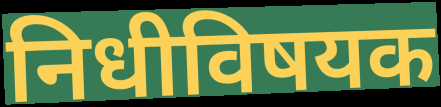
निधीविषयक